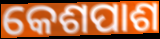
କେଶପାଶ